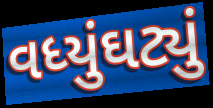
વધ્યુંઘટ્યું